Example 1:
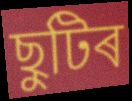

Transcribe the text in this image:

ছুটিৰ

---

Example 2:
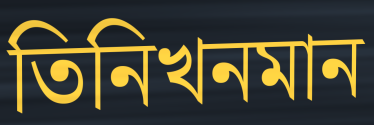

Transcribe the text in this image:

তিনিখনমান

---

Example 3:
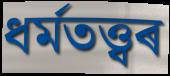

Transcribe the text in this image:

ধৰ্মতত্ত্বৰ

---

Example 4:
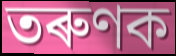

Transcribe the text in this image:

তৰুণক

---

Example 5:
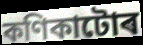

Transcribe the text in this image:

কণিকাটোৰ